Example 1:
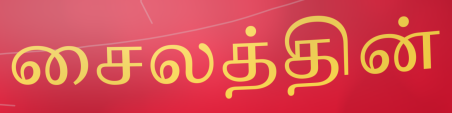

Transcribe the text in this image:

சைலத்தின்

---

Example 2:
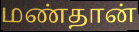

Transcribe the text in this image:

மண்தான்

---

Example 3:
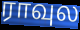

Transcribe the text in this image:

ராவுல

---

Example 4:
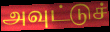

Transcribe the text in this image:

அவுட்டுச்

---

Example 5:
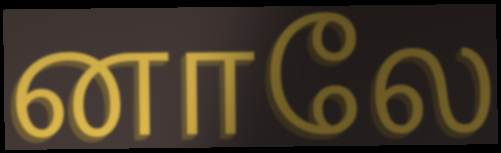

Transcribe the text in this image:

னாலே